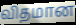
விதமான